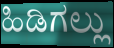
ಹಿಡಿಗಲ್ಲು